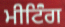
ਮੀਟਿਂੰਗ